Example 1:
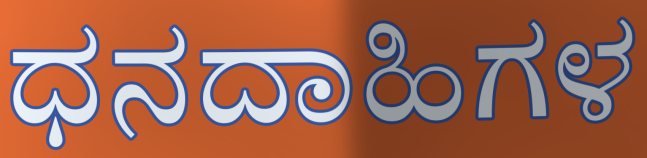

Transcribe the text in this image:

ಧನದಾಹಿಗಳ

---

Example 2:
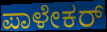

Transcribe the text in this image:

ಪಾಳೇಕರ್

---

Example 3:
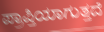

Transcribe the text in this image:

ಪ್ರಾಪ್ತಿಯಾಗುತ್ತದೆ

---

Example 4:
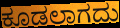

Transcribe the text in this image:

ಕೂಡಲಾಗದು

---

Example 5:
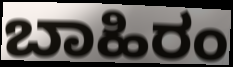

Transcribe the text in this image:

ಬಾಹಿರಂ